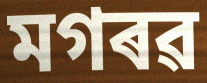
মগৰৱ